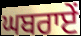
ਘਬਰਾਏਂ